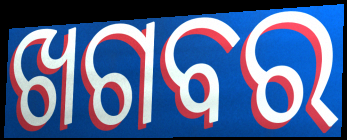
ଖଗବର